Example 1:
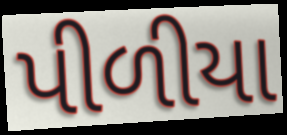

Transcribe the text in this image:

પીળીયા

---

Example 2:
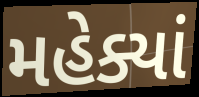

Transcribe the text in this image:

મહેક્યાં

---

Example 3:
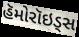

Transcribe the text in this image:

હૅમોરૉઇડ્સ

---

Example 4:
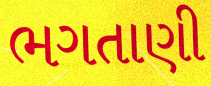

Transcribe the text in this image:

ભગતાણી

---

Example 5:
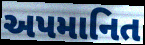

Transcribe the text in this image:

અપમાનિત